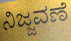
ನಿಜ್ಜವಣೆ